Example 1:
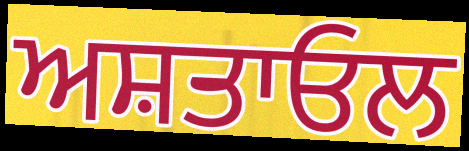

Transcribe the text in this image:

ਅਸ਼ਤਾਓਲ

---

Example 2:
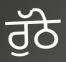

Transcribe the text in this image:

ਰੁੱਠੇ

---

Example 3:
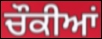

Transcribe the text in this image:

ਚੌਕੀਆਂ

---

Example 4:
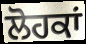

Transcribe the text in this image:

ਲੋਹਕਾਂ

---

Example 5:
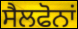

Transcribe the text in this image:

ਸੈਲਫੋਨਾਂ